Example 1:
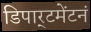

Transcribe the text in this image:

डिपार्टमेंटनं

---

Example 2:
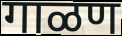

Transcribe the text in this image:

गाळण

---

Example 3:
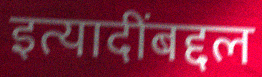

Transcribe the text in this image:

इत्यादींबद्दल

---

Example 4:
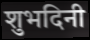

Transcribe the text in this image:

शुभदिनी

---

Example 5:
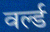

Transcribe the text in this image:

वर्ल्ड